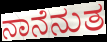
ನಾನೆನುತ